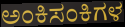
ಅಂಕಿಸಂಕಿಗಳ